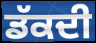
ਡੱਕਦੀ